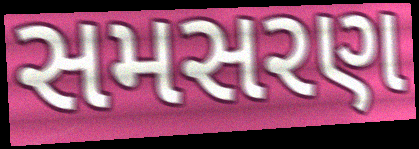
સમસરણ